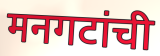
मनगटांची